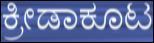
ಕ್ರೀಡಾಕೂಟ